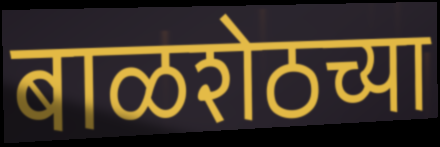
बाळशेठच्या